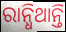
ରାନ୍ଧିଥାନ୍ତି